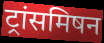
ट्रांसमिषन